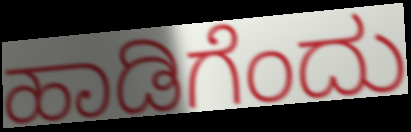
ಹಾಡಿಗೆಂದು